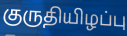
குருதியிழப்பு